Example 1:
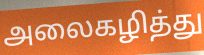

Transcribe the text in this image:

அலைகழித்து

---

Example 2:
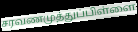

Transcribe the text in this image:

சரவணமுத்துப்பிள்ளை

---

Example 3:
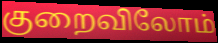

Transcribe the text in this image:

குறைவிலோம்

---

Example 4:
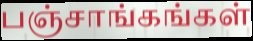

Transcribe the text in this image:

பஞ்சாங்கங்கள்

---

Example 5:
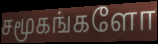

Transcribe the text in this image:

சமூகங்களோ